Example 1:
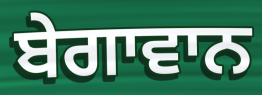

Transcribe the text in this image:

ਬੇਗਾਵਾਨ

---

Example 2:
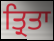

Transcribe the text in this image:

ਤ੍ਰਿਤਾ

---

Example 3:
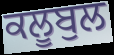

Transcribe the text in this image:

ਕਲੂਬੁਲ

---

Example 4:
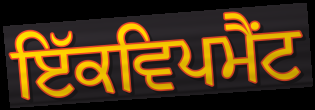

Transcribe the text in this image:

ਇੱਕਵਿਪਮੈਂਟ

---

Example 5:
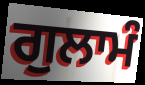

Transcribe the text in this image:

ਗੁਲਾਮੰ